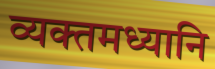
व्यक्तमध्यानि